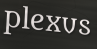
plexus